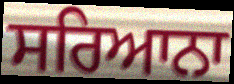
ਸਰਿਆਨਾ